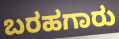
ಬರಹಗಾರು